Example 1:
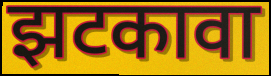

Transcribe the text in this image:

झटकावा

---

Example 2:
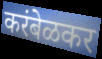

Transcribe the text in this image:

करंबेळकर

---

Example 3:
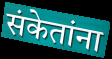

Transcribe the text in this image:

संकेतांना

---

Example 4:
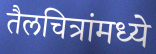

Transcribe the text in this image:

तैलचित्रांमध्ये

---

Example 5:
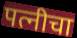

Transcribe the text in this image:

पत्नीचा